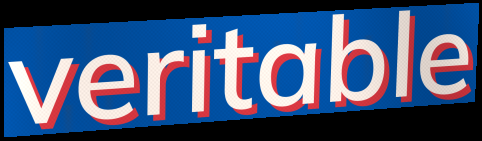
veritable